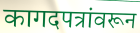
कागदपत्रांवरून